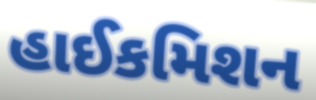
હાઈકમિશન